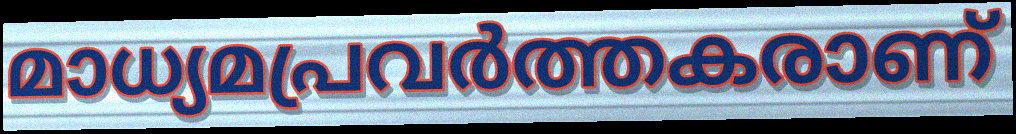
മാധ്യമപ്രവർത്തകരാണ്